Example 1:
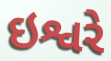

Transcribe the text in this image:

ઇશ્વરે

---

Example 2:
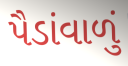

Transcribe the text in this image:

પૈડાંવાળું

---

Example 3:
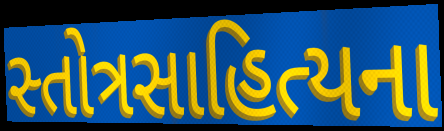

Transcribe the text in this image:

સ્તોત્રસાહિત્યના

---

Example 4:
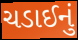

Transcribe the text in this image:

ચડાઈનું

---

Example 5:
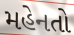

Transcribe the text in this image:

મહેનતો